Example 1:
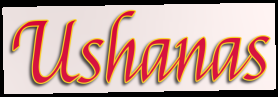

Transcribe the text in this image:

Ushanas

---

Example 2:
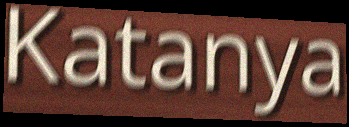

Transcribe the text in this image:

Katanya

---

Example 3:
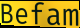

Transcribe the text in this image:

Befam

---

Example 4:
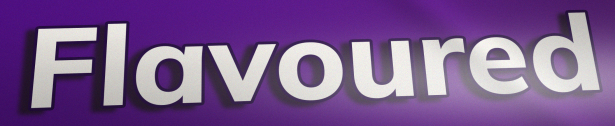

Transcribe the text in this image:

Flavoured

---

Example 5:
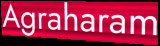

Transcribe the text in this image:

Agraharam